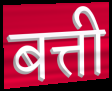
बत्ती